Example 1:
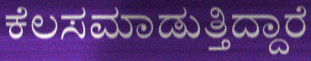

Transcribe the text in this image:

ಕೆಲಸಮಾಡುತ್ತಿದ್ದಾರೆ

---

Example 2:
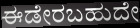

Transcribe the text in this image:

ಈಡೇರಬಹುದೇ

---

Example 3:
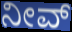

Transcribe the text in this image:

ನೀವ್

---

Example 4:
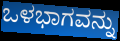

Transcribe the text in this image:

ಒಳಭಾಗವನ್ನು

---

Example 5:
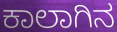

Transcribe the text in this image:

ಕಾಲಾಗಿನ